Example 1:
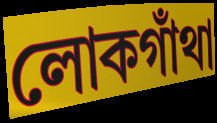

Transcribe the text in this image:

লোকগাঁথা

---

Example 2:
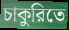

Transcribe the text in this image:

চাকুরিতে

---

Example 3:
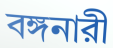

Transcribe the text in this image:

বঙ্গনারী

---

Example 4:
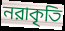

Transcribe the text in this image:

নরাকৃতি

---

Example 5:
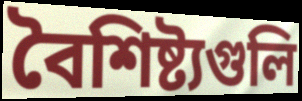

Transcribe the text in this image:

বৈশিষ্ট্যগুলি